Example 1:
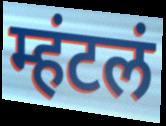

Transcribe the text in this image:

म्हंटलं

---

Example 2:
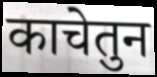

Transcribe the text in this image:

काचेतुन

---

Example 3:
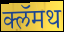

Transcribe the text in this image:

क्लॅमथ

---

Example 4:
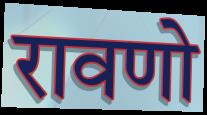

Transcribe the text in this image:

रावणो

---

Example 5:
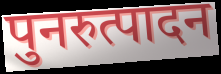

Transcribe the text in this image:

पुनरुत्पादन